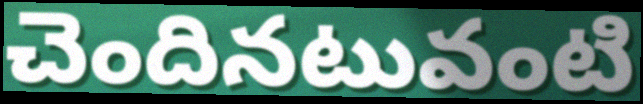
చెందినటువంటి